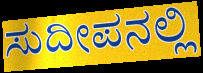
ಸುದೀಪನಲ್ಲಿ